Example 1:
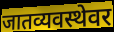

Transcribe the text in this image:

जातव्यवस्थेवर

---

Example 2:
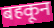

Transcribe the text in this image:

बहकून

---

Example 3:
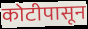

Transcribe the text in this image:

कोटीपासून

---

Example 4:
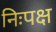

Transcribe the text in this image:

निःपक्ष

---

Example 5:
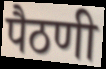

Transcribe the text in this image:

पैठणी